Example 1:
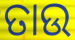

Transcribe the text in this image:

ତାଉ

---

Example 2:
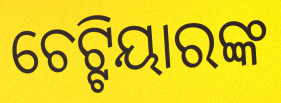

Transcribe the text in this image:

ଚେଟ୍ଟିୟାରଙ୍କ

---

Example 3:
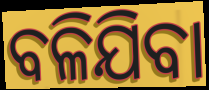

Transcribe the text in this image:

ବଳିଯିବା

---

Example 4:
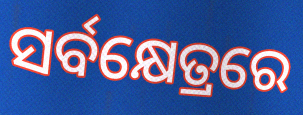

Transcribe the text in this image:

ସର୍ବକ୍ଷେତ୍ରରେ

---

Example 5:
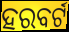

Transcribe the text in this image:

ହରବର୍ଟ